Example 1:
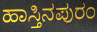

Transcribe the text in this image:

ಹಾಸ್ತಿನಪುರಂ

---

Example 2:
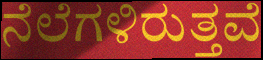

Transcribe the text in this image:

ನೆಲೆಗಳಿರುತ್ತವೆ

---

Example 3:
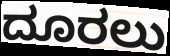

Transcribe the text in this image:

ದೂರಲು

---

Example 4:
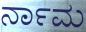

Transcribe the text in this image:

ರ್ನಾಮ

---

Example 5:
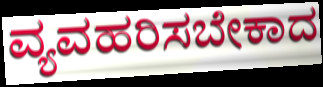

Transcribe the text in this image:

ವ್ಯವಹರಿಸಬೇಕಾದ